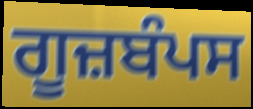
ਗੂਜ਼ਬੰਪਸ